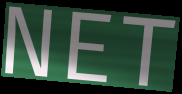
NET